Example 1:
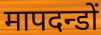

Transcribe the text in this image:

मापदन्डों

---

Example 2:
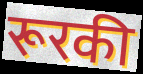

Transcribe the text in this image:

रूरकी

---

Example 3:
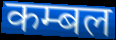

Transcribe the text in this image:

कम्बल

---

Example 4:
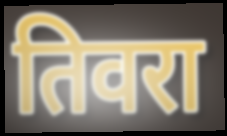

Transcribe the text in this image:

तिवरा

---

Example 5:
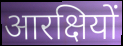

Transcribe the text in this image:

आरक्षियों